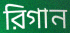
রিগান